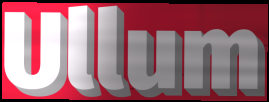
Ullum